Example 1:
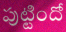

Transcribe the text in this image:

పుట్టిందో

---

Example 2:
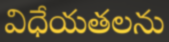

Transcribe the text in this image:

విధేయతలను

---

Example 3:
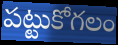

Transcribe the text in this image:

పట్టుకోగలం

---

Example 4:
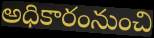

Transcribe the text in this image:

అధికారంనుంచి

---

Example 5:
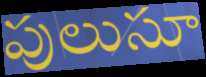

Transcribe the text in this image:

పులుసూ